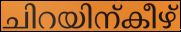
ചിറയിന്കീഴ്